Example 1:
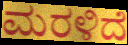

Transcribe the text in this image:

ಮರಳಿದೆ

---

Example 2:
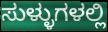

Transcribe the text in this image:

ಸುಳ್ಳುಗಳಲ್ಲಿ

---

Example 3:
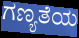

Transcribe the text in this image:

ಗಣ್ಯತೆಯ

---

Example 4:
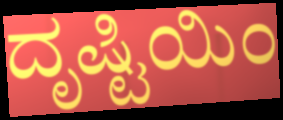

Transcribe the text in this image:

ದೃಷ್ಟಿಯಿಂ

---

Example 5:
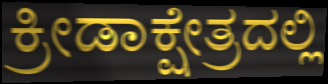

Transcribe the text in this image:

ಕ್ರೀಡಾಕ್ಷೇತ್ರದಲ್ಲಿ